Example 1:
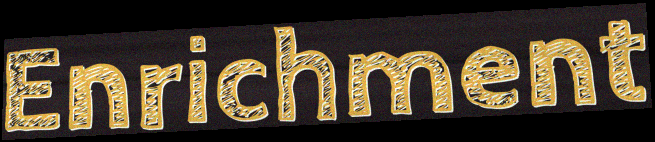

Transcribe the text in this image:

Enrichment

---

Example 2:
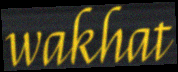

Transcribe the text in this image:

wakhat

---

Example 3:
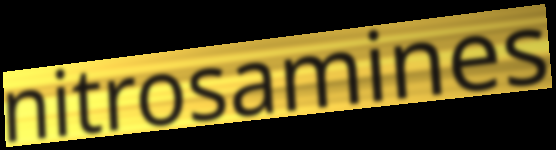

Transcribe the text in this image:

nitrosamines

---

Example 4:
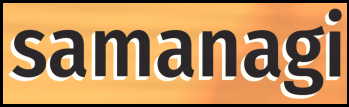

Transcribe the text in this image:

samanagi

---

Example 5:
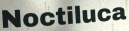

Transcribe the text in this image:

Noctiluca